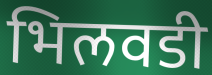
भिलवडी